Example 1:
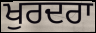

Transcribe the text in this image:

ਖੁਰਦਰਾ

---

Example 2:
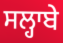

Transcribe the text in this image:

ਸਲ੍ਹਾਬੇ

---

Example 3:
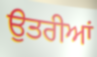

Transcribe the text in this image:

ਉਤਰੀਆਂ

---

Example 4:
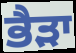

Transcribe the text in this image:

ਭੈੜਾ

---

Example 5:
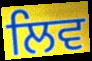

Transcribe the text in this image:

ਲਿਵ